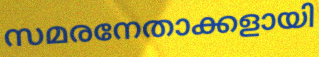
സമരനേതാക്കളായി